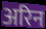
अरिन